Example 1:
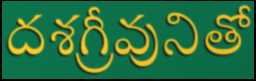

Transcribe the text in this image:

దశగ్రీవునితో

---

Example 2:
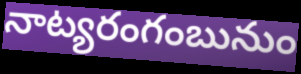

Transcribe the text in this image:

నాట్యరంగంబునుం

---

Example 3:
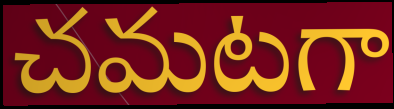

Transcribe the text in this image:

చమటగా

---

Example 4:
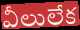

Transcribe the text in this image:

వీలులేక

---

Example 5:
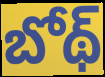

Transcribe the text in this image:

బోథ్